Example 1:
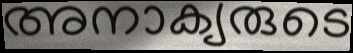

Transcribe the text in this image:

അനാക്യരുടെ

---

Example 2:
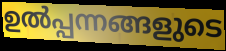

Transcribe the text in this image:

ഉൽപ്പന്നങ്ങളുടെ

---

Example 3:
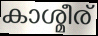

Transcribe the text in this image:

കാശ്മീര്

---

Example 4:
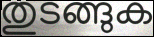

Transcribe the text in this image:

തുടങ്ങുക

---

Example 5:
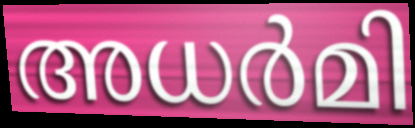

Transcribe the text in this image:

അധർമി